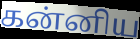
கன்னிய